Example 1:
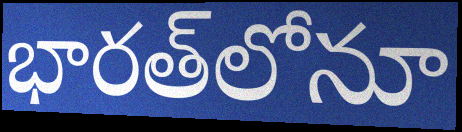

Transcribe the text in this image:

భారత్‌లోనూ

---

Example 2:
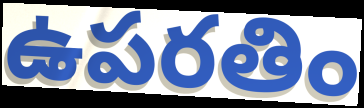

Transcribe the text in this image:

ఉపరతిం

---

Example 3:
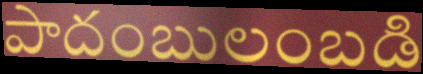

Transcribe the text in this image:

పాదంబులంబడి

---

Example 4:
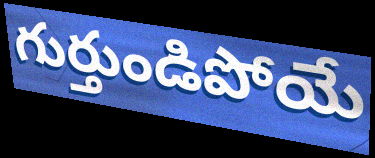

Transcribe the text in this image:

గుర్తుండిపోయే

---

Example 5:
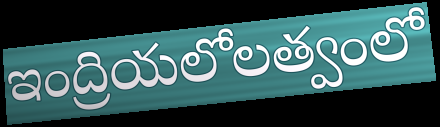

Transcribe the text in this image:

ఇంద్రియలోలత్వంలో